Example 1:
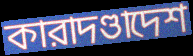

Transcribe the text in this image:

কারাদণ্ডাদেশ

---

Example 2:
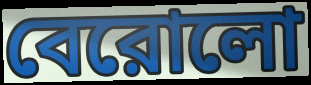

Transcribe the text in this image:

বেরোলো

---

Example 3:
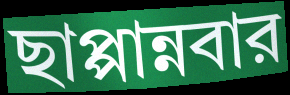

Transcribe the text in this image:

ছাপ্পান্নবার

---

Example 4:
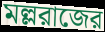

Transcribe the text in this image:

মল্লরাজের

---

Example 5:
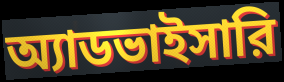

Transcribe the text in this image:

অ্যাডভাইসারি